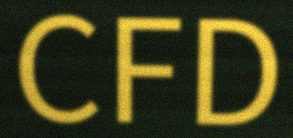
CFD